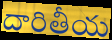
దారితీయ